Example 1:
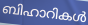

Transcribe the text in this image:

ബിഹാറികൾ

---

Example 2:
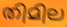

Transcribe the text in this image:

തിമില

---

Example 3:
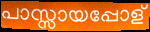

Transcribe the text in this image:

പാസ്സായപ്പോള്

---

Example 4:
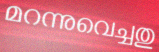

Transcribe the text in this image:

മറന്നുവെച്ചതു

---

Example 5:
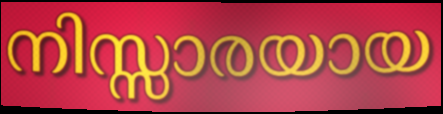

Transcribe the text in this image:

നിസ്സാരയായ